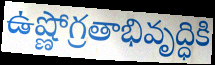
ఉష్ణోగ్రతాభివృద్ధికి